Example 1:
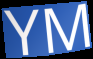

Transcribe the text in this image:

YM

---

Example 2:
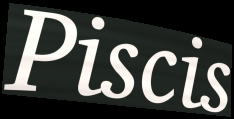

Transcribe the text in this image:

Piscis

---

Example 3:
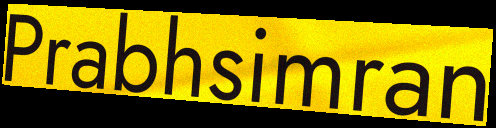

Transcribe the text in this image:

Prabhsimran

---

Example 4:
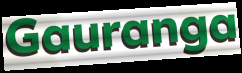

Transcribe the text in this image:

Gauranga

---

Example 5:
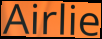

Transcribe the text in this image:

Airlie